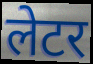
लेटर